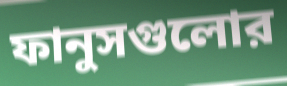
ফানুসগুলোর